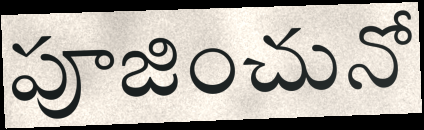
పూజించునో